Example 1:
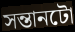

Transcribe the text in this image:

সন্তানটো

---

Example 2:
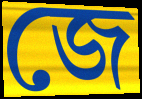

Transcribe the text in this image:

জে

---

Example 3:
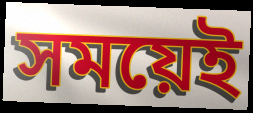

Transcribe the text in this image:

সময়েই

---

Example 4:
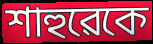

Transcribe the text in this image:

শাহুৱেকে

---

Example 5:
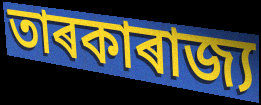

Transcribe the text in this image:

তাৰকাৰাজ্য